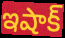
ఇషాక్